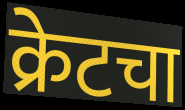
क्रेटचा